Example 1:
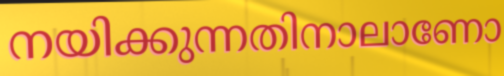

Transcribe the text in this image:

നയിക്കുന്നതിനാലാണോ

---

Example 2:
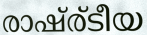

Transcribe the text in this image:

രാഷ്ര്ടീയ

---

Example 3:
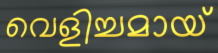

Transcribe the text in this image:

വെളിച്ചമായ്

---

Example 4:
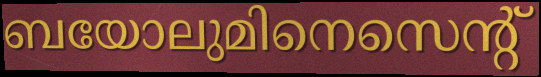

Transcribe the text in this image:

ബയോലുമിനെസെന്റ്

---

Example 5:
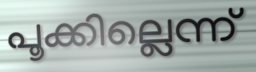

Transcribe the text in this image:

പൂക്കില്ലെന്ന്